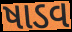
ષાડવ